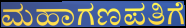
ಮಹಾಗಣಪತಿಗೆ